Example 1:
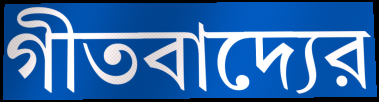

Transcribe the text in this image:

গীতবাদ্যের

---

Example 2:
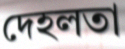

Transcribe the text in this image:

দেহলতা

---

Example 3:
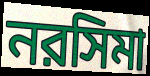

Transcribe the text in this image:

নরসিমা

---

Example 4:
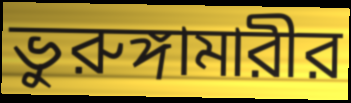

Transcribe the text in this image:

ভুরুঙ্গামারীর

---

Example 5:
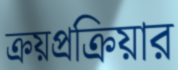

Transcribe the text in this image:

ক্রয়প্রক্রিয়ার